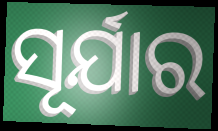
ସୂର୍ଯାର